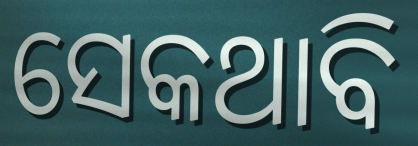
ସେକଥାବି